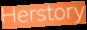
Herstory